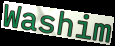
Washim